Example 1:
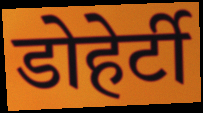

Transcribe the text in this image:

डोहेर्टी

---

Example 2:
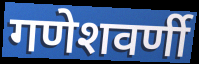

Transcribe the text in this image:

गणेशवर्णी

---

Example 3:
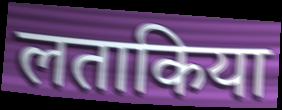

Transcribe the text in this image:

लताकिया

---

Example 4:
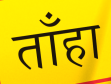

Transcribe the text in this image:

ताँहा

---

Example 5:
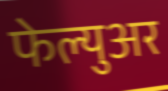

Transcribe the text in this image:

फेल्युअर